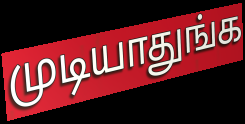
முடியாதுங்க